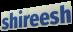
shireesh